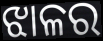
ଝାଳର